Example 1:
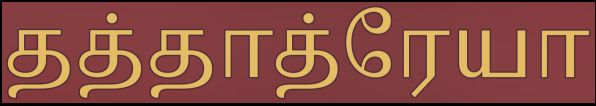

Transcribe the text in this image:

தத்தாத்ரேயா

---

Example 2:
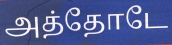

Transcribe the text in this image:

அத்தோடே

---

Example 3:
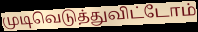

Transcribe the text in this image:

முடிவெடுத்துவிட்டோம்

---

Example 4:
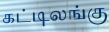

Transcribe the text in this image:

கட்டிலங்கு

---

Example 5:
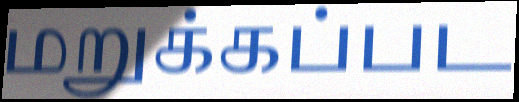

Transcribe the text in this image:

மறுக்கப்பட